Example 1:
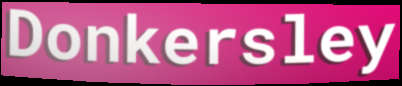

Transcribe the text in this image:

Donkersley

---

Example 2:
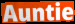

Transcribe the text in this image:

Auntie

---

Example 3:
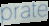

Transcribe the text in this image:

prate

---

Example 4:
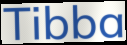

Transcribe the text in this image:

Tibba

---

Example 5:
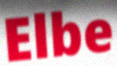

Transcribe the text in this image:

Elbe